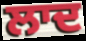
ਲਾਦ